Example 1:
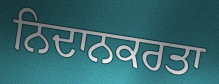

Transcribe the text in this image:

ਨਿਦਾਨਕਰਤਾ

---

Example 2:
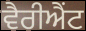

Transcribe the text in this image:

ਵੈਰੀਐਂਟ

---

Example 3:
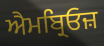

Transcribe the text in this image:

ਐਮਬ੍ਰਿਓਜ਼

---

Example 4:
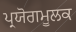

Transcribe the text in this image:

ਪ੍ਰਯੋਗਮੂਲਕ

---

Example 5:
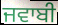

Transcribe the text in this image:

ਜਵਾਬੀ